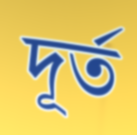
দূর্ত